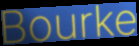
Bourke